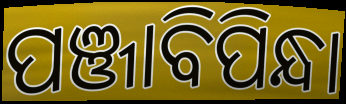
ପଞ୍ଜାବିପିନ୍ଧା